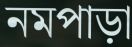
নমপাড়া